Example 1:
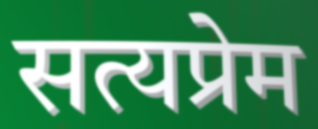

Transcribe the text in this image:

सत्यप्रेम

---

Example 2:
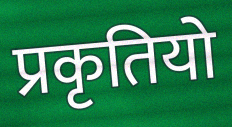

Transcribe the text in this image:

प्रकृतियो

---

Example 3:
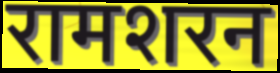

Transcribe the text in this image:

रामशरन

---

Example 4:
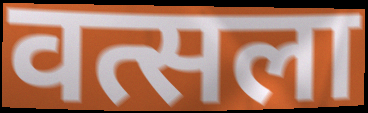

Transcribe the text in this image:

वत्सला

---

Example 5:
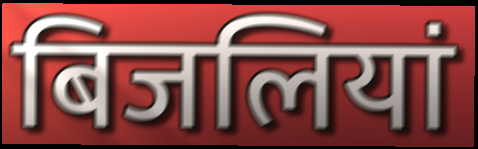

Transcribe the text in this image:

बिजलियां